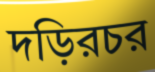
দড়িরচর